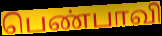
பெண்பாவி